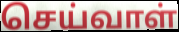
செய்வாள்